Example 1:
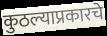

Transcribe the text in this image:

कुठल्याप्रकारचे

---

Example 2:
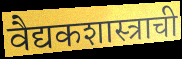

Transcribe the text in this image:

वैद्यकशास्त्राची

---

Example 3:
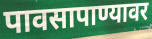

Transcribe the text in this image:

पावसापाण्यावर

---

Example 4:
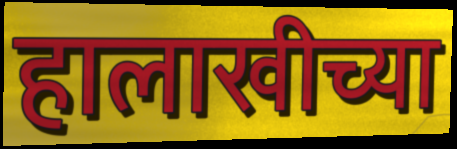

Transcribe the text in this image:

हालाखीच्या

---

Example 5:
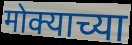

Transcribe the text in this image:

मोक्याच्या